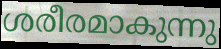
ശരീരമാകുന്നു